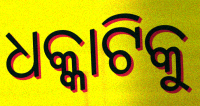
ଧକ୍କାଟିକୁ